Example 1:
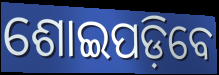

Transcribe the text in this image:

ଶୋଇପଡ଼ିବେ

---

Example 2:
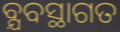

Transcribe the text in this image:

ବ୍ଯବସ୍ଥାଗତ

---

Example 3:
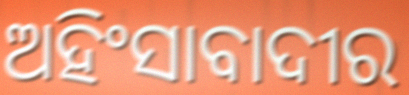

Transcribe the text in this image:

ଅହିଂସାବାଦୀର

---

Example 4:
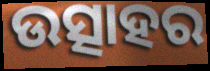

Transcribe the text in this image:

ଉତ୍ସାହର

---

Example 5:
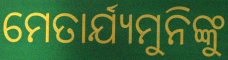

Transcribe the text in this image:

ମେତାର୍ଯ୍ୟମୁନିଙ୍କୁ